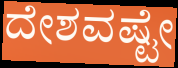
ದೇಶವಷ್ಟೇ